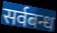
सर्वबन्ध